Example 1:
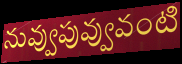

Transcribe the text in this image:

నువ్వుపువ్వువంటి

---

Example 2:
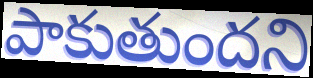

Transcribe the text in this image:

పాకుతుందని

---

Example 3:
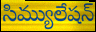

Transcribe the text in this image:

సిమ్యులేషన్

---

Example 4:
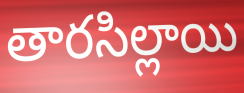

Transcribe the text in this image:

తారసిల్లాయి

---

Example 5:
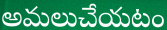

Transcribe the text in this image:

అమలుచేయటం